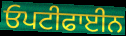
ਓਪਟੀਫਾਈਨ